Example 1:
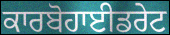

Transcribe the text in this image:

ਕਾਰਬੋਹਾਈਡਰੇਟ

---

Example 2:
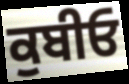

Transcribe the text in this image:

ਕੁਬੀਓ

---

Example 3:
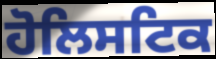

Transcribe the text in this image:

ਹੋਲਿਸਟਿਕ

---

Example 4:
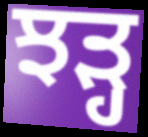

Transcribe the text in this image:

ਝੜ੍ਹ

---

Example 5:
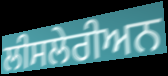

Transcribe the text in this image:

ਲੀਸਲੇਰੀਅਨ